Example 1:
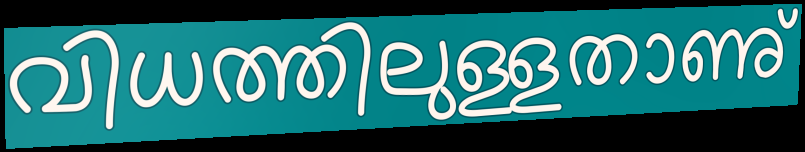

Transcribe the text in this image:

വിധത്തിലുള്ളതാണു്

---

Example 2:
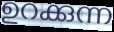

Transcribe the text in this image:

ഉറക്കുന്ന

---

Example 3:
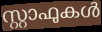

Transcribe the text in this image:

സ്റ്റാഫുകൾ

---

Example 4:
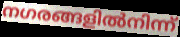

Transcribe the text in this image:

നഗരങ്ങളിൽനിന്ന്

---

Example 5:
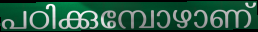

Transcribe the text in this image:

പഠിക്കുമ്പോഴാണ്